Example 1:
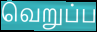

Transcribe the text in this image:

வெறுப்ப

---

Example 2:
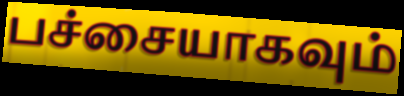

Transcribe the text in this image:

பச்சையாகவும்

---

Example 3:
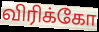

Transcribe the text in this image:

விரிக்கோ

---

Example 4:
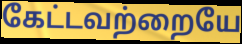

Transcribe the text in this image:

கேட்டவற்றையே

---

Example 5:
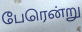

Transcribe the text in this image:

பேரென்று